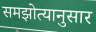
समझोत्यानुसार